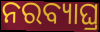
ନରବ୍ୟାଘ୍ର